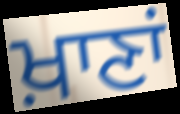
ਖ਼ਾਣਾਂ